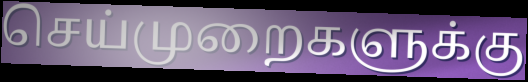
செய்முறைகளுக்கு